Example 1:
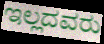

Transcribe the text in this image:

ಇಲ್ಲದವರು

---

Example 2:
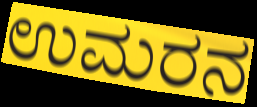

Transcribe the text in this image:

ಉಮರನ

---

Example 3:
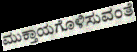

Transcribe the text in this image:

ಮುಕ್ತಾಯಗೊಳಿಸುವಂತೆ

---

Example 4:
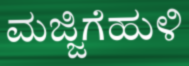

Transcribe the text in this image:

ಮಜ್ಜಿಗೆಹುಳಿ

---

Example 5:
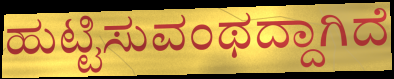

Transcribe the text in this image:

ಹುಟ್ಟಿಸುವಂಥದ್ದಾಗಿದೆ